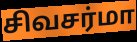
சிவசர்மா